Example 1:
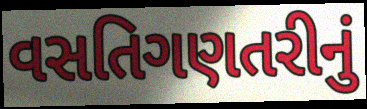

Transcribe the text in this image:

વસતિગણતરીનું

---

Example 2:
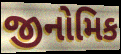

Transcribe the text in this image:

જીનોમિક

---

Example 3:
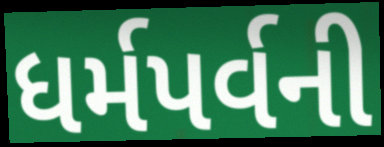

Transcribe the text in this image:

ધર્મપર્વની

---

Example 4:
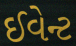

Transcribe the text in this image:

ઈવેન્ટ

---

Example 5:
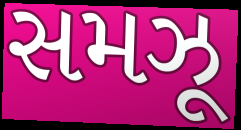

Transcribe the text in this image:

સમઝૂ